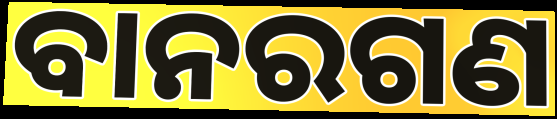
ବାନରଗଣ